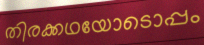
തിരക്കഥയോടൊപ്പം